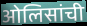
ओलिसांची